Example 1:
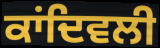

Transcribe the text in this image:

ਕਾਂਦਿਵਲੀ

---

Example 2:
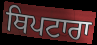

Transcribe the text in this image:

ਥਿਪਟਾਰਾ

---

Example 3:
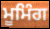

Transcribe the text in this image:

ਮੂਮਿੰਗ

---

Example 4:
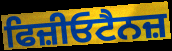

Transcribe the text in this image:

ਫਿਜ਼ੀਓਟੈਨਜ਼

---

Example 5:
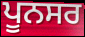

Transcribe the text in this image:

ਪੂਨਸਰ